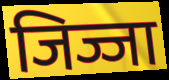
जिज्जा